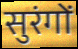
सुरंगों